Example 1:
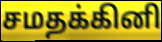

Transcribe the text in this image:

சமதக்கினி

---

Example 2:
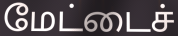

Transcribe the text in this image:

மேட்டைச்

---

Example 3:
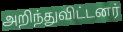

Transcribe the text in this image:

அறிந்துவிட்டனர்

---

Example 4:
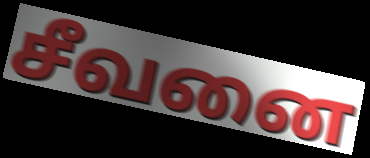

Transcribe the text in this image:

சீவனை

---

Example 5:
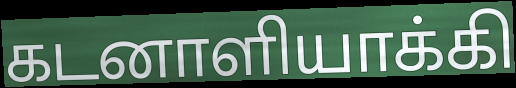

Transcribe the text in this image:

கடனாளியாக்கி